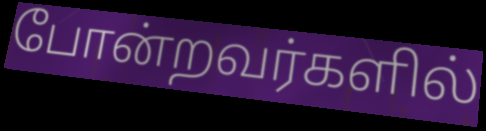
போன்றவர்களில்